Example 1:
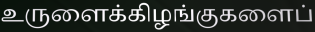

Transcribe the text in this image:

உருளைக்கிழங்குகளைப்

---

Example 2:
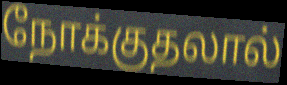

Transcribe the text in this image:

நோக்குதலால்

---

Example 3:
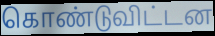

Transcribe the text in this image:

கொண்டுவிட்டன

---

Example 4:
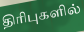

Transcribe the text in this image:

திரிபுகளில்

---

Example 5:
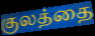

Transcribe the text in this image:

குலத்தை